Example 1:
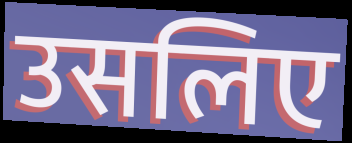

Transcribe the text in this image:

उसलिए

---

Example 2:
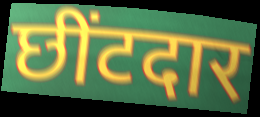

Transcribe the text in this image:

छींटदार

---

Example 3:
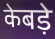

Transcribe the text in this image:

केबड़े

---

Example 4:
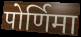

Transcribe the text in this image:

पोर्णिमा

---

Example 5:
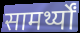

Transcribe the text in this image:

सामर्थ्यों